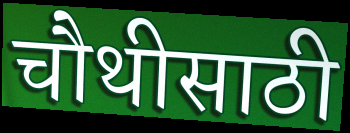
चौथीसाठी